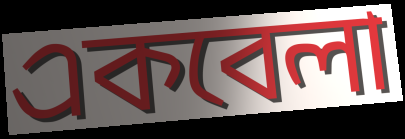
একবেলা